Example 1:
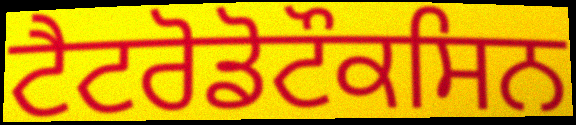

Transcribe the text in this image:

ਟੈਟਰੋਡੋਟੌਕਸਿਨ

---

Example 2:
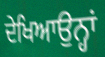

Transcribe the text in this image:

ਦੇਖਿਆਉਨ੍ਹਾਂ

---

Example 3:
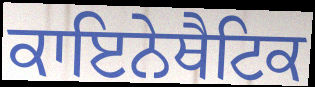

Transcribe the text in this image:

ਕਾਇਨੇਥੈਟਿਕ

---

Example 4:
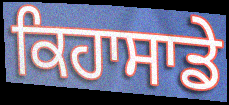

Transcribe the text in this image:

ਕਿਹਾਸਾਡੇ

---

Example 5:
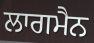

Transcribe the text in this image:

ਲਾਗਮੈਨ